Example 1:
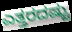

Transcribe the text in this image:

ಎತ್ತರದಷ್ಟು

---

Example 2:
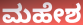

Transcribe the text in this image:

ಮಹೇಶ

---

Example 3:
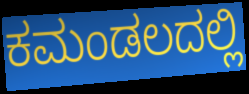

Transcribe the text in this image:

ಕಮಂಡಲದಲ್ಲಿ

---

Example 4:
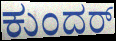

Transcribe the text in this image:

ಕುಂದರ್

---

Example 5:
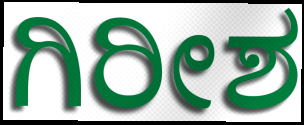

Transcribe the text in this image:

ಗಿರೀಶ